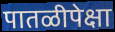
पातळीपेक्षा